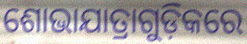
ଶୋଭାଯାତ୍ରାଗୁଡ଼ିକରେ